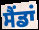
ਸੈਂਡਾਂ